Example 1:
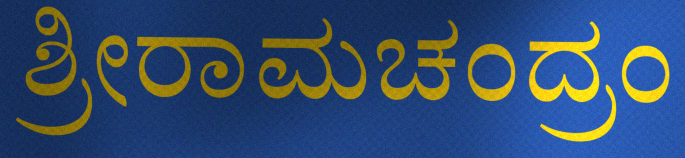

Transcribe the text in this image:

ಶ್ರೀರಾಮಚಂದ್ರಂ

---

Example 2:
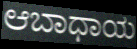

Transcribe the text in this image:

ಆಬಾಧಾಯ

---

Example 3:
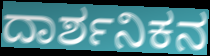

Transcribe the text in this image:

ದಾರ್ಶನಿಕನ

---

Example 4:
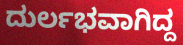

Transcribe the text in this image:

ದುರ್ಲಭವಾಗಿದ್ದ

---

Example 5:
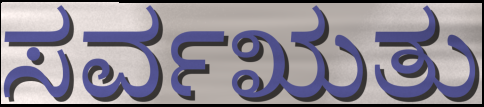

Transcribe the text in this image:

ಸರ್ವಋತು